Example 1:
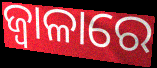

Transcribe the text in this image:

ଜ୍ଵାଳାରେ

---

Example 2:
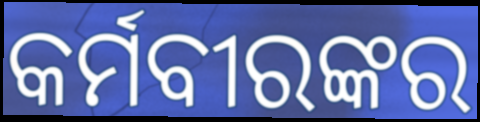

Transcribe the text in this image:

କର୍ମବୀରଙ୍କର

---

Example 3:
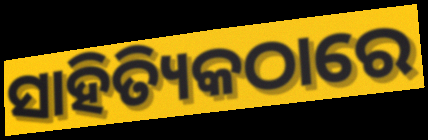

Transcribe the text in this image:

ସାହିତ୍ୟିକଠାରେ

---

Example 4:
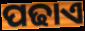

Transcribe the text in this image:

ପଢାଏ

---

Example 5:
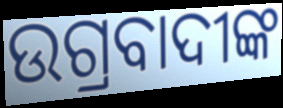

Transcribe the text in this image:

ଉଗ୍ରବାଦୀଙ୍କ